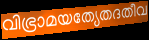
വിഭ്രാമയത്യേതദതീവ